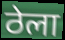
ठेला